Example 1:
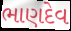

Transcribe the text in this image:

ભાણદેવ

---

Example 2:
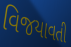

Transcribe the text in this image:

વિજયાવતી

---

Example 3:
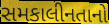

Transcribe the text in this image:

સમકાલીનતાનો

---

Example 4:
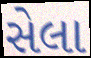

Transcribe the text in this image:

સેલા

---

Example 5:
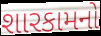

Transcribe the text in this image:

શારકામનો